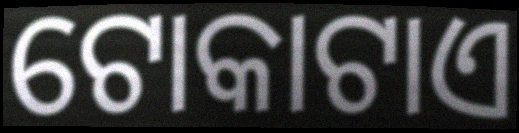
ଟୋକାଟାଏ